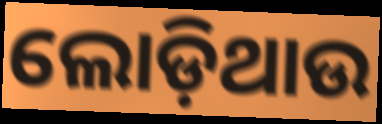
ଲୋଡ଼ିଥାଉ